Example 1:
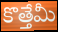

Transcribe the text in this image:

కొత్తేమీ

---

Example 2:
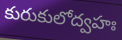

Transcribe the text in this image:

కురుకులోద్వహః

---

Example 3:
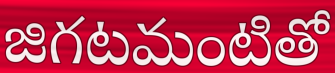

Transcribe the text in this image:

జిగటమంటితో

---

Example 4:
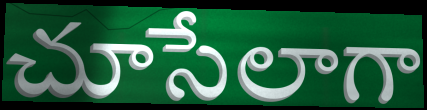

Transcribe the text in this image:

చూసేలాగా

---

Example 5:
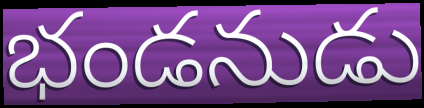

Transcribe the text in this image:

భండనుడు